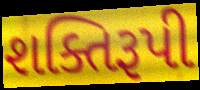
શક્તિરૂપી